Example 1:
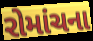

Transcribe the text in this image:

રોમાંચના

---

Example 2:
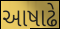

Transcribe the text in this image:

આષાઢે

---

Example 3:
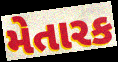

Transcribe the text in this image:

મેતારક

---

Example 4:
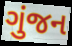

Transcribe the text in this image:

ગુંજન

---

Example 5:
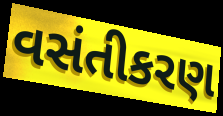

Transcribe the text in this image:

વસંતીકરણ